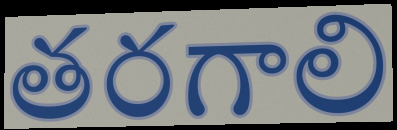
తరగాలి